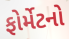
ફોર્મેટનો